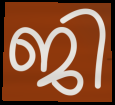
ജി